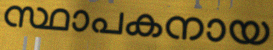
സ്ഥാപകനായ